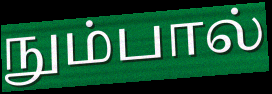
நும்பால்